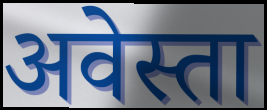
अवेस्ता